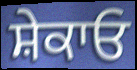
ਸ਼ੇਕਾਓ